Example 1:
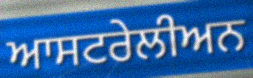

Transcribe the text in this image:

ਆਸਟਰੇਲੀਅਨ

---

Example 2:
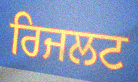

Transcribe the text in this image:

ਰਿਜਲਟ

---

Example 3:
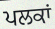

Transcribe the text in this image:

ਪਲਕਾਂ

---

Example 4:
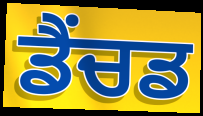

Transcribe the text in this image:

ਡੈਂਚਡ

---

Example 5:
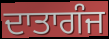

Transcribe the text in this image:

ਦਾਤਾਗੰਜ